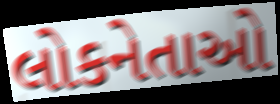
લોકનેતાઓ